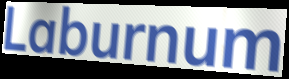
Laburnum